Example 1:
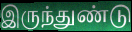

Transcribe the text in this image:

இருந்துண்டு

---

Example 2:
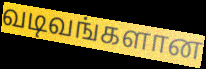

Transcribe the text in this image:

வடிவங்களான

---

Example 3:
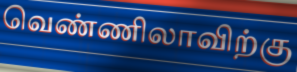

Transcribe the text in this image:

வெண்ணிலாவிற்கு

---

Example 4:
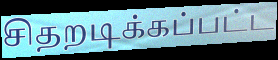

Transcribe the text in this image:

சிதறடிக்கப்பட்ட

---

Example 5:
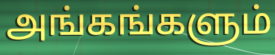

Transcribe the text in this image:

அங்கங்களும்